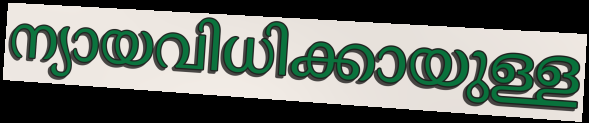
ന്യായവിധിക്കായുള്ള